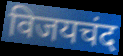
विजयचंद